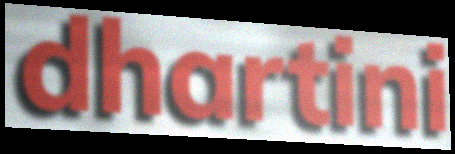
dhartini